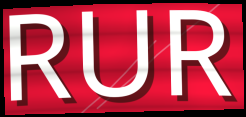
RUR